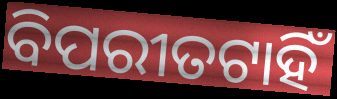
ବିପରୀତଟାହିଁ